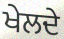
ਖੇਲਦੇ